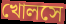
খোলসে